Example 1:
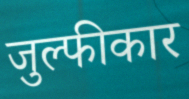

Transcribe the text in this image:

जुल्फीकार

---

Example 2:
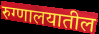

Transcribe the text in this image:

रुग्णालयातील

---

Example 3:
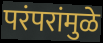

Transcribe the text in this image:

परंपरांमुळे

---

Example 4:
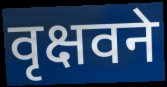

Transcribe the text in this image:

वृक्षवने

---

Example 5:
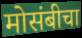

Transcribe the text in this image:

मोसंबीचा